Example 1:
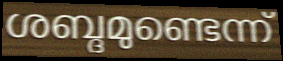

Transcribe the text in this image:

ശബ്ദമുണ്ടെന്ന്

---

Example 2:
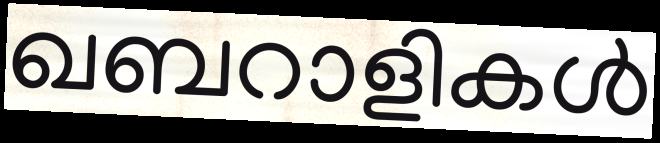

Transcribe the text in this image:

ഖബറാളികൾ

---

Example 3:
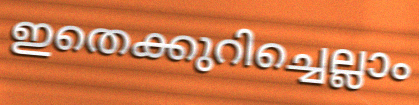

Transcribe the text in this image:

ഇതെക്കുറിച്ചെല്ലാം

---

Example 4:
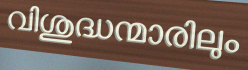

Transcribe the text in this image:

വിശുദ്ധന്മാരിലും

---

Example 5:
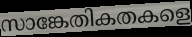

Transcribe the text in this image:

സാങ്കേതികതകളെ